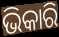
ଭିକାରି